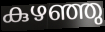
കുഴഞ്ഞു